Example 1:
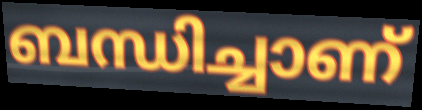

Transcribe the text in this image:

ബന്ധിച്ചാണ്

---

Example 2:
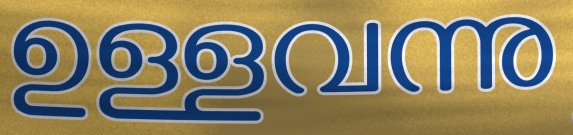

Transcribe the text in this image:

ഉള്ളവന്നു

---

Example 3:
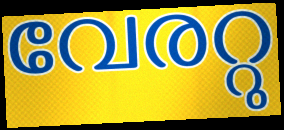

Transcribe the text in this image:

വേരറ്റു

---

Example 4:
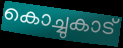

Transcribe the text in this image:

കൊച്ചുകാട്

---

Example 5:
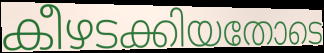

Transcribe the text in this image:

കീഴടക്കിയതോടെ